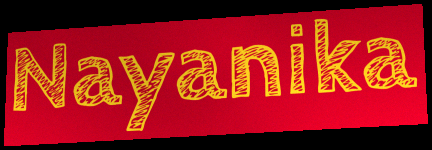
Nayanika